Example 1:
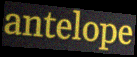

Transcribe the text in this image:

antelope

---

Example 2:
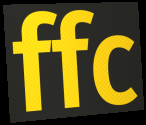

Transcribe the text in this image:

ffc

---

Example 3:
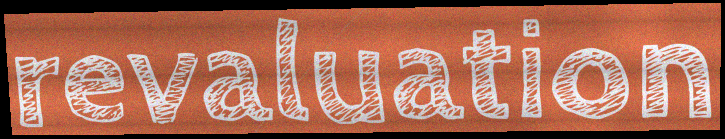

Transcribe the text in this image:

revaluation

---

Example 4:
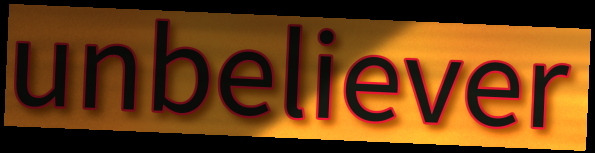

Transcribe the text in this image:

unbeliever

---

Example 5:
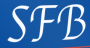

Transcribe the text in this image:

SFB